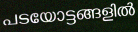
പടയോട്ടങ്ങളിൽ